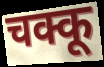
चक्कू